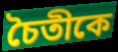
চৈতীকে